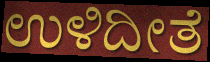
ಉಳಿದೀತೆ